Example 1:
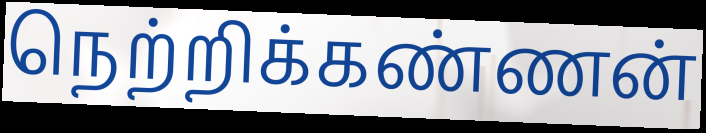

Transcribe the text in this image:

நெற்றிக்கண்ணன்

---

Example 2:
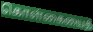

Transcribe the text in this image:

கொள்கையைத்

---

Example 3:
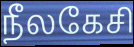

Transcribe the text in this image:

நீலகேசி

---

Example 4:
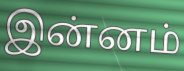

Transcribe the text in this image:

இன்னம்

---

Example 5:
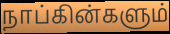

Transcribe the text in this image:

நாப்கின்களும்